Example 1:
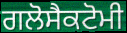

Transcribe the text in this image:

ਗਲੋਸੈਕਟੋਮੀ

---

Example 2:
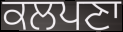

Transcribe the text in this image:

ਕਲਪਣਾ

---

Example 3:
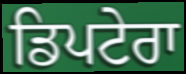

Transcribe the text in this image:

ਡਿਪਟੇਰਾ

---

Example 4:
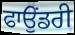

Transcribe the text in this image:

ਫਾਉਂਡਰੀ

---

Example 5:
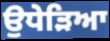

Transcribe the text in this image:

ਉਧੇੜਿਆ